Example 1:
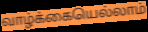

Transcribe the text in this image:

வாழ்க்கையெல்லாம்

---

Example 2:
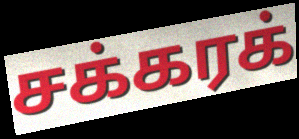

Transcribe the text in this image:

சக்கரக்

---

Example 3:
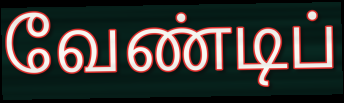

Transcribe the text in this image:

வேண்டிப்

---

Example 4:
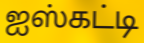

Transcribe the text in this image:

ஐஸ்கட்டி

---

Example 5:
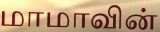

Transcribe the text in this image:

மாமாவின்